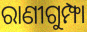
ରାଣୀଗୁମ୍ଫା